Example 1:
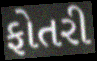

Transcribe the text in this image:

ફોતરી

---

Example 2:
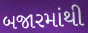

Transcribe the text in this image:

બજારમાંથી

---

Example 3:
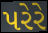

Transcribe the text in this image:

પરેરે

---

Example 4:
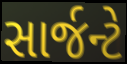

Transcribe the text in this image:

સાર્જન્ટે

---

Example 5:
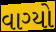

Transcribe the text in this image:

વાગ્યો